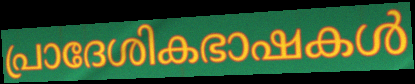
പ്രാദേശികഭാഷകൾ